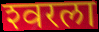
श्वरला